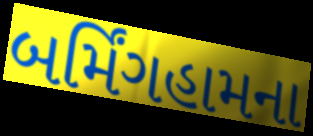
બર્મિંગહામના